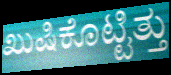
ಖುಷಿಕೊಟ್ಟಿತ್ತು